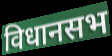
विधानसभ